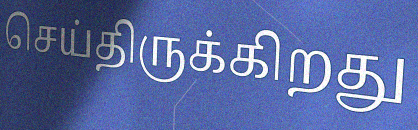
செய்திருக்கிறது